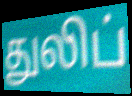
துலிப்